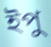
ইপু